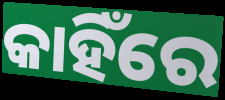
କାହିଁରେ